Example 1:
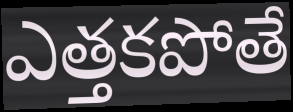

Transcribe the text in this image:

ఎత్తకపోతే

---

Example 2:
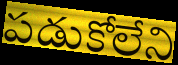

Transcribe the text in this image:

పడుకోలేని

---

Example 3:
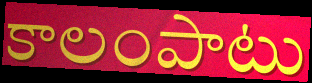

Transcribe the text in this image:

కాలంపాటు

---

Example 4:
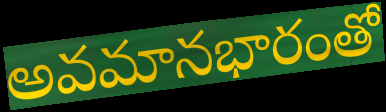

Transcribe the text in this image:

అవమానభారంతో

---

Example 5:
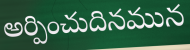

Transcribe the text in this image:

అర్పించుదినమున